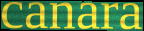
canara